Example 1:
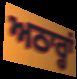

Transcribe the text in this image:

ਅਠਾਰ੍ਹਾਂ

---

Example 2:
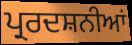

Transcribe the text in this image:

ਪ੍ਰਰਦਸ਼ਨੀਆਂ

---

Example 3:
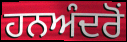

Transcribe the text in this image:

ਹਨਅੰਦਰੋਂ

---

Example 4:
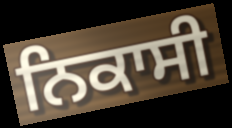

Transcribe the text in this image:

ਨਿਕਾਸੀ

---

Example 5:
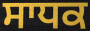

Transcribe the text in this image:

ਸਾਧਕ